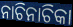
ନାଚିନାଚିକା